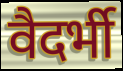
वैदर्भी